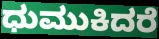
ಧುಮುಕಿದರೆ